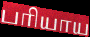
பரியாய